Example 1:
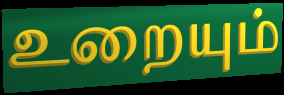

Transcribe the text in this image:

உறையும்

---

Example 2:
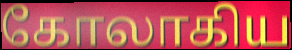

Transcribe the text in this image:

கோலாகிய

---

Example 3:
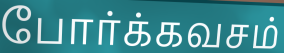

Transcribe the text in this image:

போர்க்கவசம்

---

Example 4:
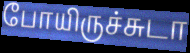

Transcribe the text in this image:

போயிருச்சுடா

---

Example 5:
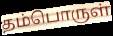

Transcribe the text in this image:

தம்பொருள்